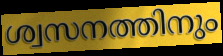
ശ്വസനത്തിനും